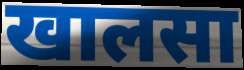
खालसा